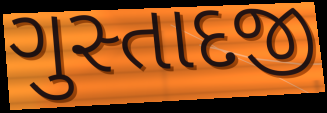
ગુસ્તાદજી